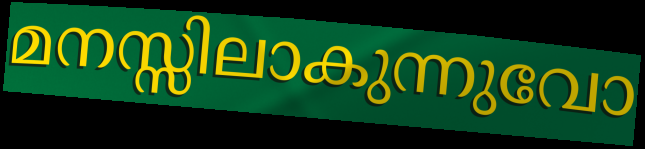
മനസ്സിലാകുന്നുവോ